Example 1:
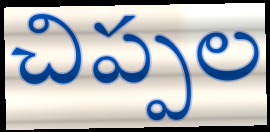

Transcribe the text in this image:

చిప్పల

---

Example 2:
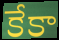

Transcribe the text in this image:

కేకా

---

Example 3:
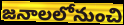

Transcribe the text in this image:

జనాలలోనుంచి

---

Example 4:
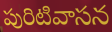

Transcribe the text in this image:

పురిటివాసన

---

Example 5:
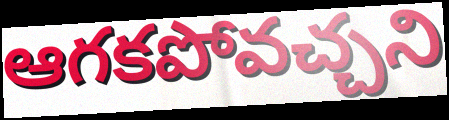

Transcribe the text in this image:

ఆగకపోవచ్చని